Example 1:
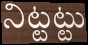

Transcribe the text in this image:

నిట్టట్టు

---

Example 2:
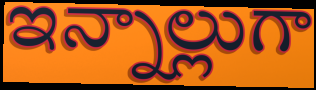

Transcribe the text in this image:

ఇన్నాల్లుగా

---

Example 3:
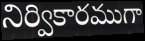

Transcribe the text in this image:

నిర్వికారముగా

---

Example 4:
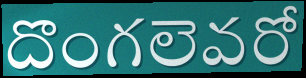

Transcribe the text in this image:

దొంగలెవరో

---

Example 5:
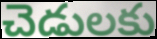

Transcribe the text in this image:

చెడులకు